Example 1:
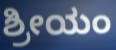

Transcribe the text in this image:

ಶ್ರೀಯಂ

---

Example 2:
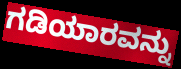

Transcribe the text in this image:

ಗಡಿಯಾರವನ್ನು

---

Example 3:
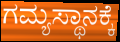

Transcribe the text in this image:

ಗಮ್ಯಸ್ಥಾನಕ್ಕೆ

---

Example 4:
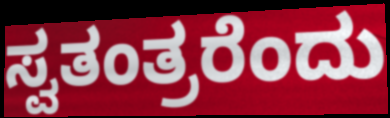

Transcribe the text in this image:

ಸ್ವತಂತ್ರರೆಂದು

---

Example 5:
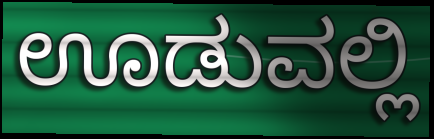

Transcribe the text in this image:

ಊಡುವಲ್ಲಿ